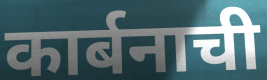
कार्बनाची